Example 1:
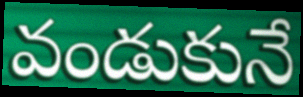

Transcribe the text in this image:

వండుకునే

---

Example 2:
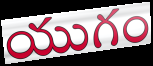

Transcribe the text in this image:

యుగం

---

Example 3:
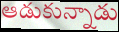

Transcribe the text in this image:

ఆడుకున్నాడు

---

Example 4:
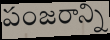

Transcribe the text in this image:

పంజరాన్ని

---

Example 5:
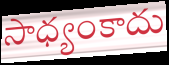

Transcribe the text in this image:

సాధ్యంకాదు